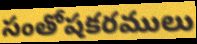
సంతోషకరములు